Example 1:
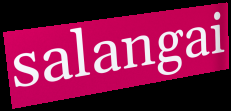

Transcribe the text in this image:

salangai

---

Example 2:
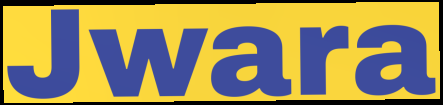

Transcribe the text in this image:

Jwara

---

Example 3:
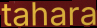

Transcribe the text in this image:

tahara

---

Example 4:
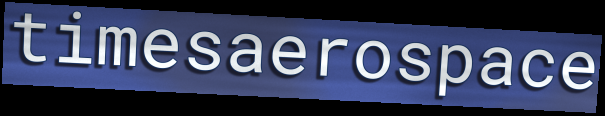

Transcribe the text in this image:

timesaerospace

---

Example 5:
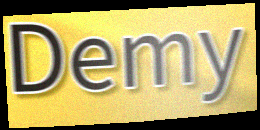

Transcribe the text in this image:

Demy